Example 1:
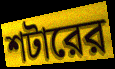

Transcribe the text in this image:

শটারের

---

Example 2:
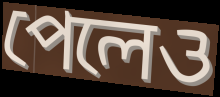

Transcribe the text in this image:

পেলেও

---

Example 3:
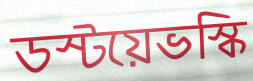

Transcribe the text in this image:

ডস্টয়েভস্কি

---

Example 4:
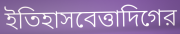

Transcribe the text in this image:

ইতিহাসবেত্তাদিগের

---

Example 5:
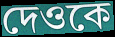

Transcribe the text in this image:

দেওকে